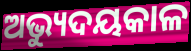
ଅଭ୍ୟୁଦୟକାଳ